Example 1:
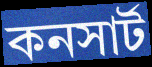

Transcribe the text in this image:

কনসার্ট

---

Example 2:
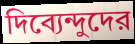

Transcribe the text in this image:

দিব্যেন্দুদের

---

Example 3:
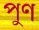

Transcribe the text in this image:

পুণ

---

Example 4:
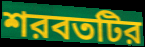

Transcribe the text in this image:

শরবতটির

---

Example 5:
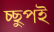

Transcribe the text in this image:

চ্ছুপই